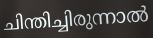
ചിന്തിച്ചിരുന്നാൽ